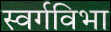
स्वर्गविभा